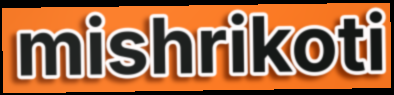
mishrikoti